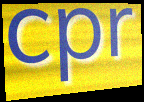
cpr